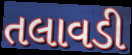
તલાવડી